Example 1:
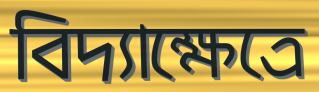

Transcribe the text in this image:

বিদ্যাক্ষেত্রে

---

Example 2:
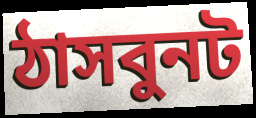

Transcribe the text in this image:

ঠাসবুনট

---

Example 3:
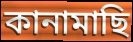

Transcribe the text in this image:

কানামাছি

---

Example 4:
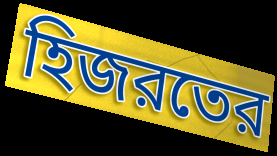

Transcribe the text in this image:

হিজরতের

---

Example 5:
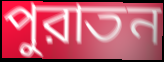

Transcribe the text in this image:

পুরাতন